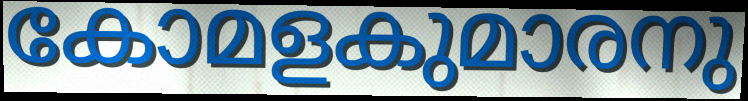
കോമളകുമാരനു